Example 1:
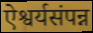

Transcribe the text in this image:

ऐश्वर्यसंपन्न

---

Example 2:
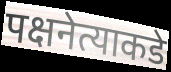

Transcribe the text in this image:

पक्षनेत्याकडे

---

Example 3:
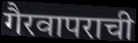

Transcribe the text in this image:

गैरवापराची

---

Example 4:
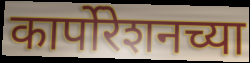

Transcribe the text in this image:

कार्पोरेशनच्या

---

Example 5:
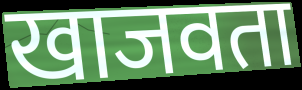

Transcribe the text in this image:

खाजवता